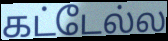
கட்டேல்ல